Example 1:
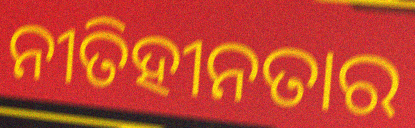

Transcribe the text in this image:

ନୀତିହୀନତାର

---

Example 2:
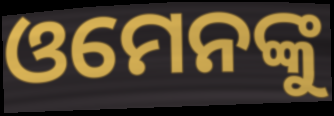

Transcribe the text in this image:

ଓମେନଙ୍କୁ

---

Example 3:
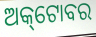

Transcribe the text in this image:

ଅକ୍‌ଟୋବର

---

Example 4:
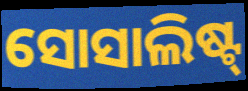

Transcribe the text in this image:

ସୋସାଲିଷ୍ଟ୍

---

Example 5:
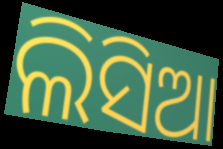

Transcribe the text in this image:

ଲିସିଆ